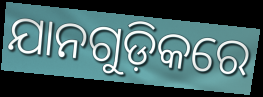
ଯାନଗୁଡ଼ିକରେ